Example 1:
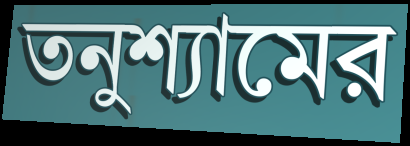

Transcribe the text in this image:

তনুশ্যামের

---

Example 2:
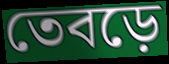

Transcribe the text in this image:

তেবড়ে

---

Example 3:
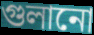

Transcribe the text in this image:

গুলানো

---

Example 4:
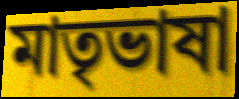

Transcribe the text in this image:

মাতৃভাষা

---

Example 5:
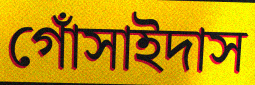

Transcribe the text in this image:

গোঁসাইদাস